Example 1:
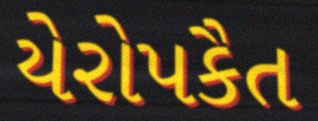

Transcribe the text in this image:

યેરોપકૈત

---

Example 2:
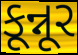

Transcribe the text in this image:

કૂન્નૂર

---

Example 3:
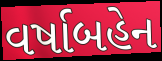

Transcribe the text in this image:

વર્ષાબહેન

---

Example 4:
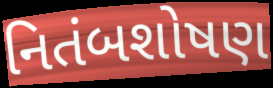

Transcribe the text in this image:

નિતંબશોષણ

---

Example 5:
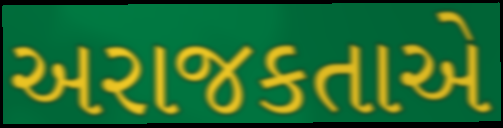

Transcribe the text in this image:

અરાજકતાએ